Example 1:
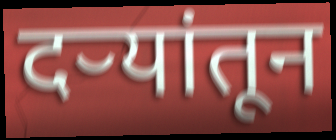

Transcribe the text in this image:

दऱ्यांतून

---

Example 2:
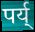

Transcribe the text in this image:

पर्य्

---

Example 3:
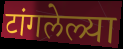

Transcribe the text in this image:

टांगलेल्या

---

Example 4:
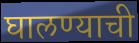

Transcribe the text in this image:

घालण्याची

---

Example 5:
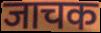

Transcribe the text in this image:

जाचक